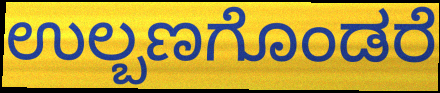
ಉಲ್ಬಣಗೊಂಡರೆ